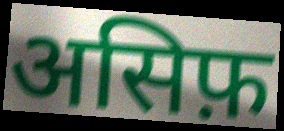
असिफ़